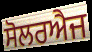
ਸੋਲਰਐਜ